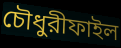
চৌধুরীফাইল